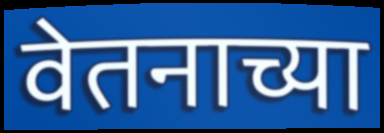
वेतनाच्या